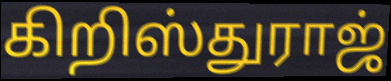
கிறிஸ்துராஜ்